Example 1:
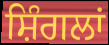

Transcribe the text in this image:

ਸ਼ਿੰਗਲਾਂ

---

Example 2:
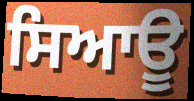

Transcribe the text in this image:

ਸਿਆਊ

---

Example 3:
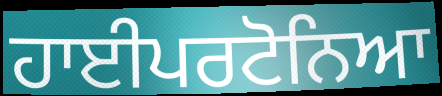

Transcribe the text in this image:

ਹਾਈਪਰਟੋਨਿਆ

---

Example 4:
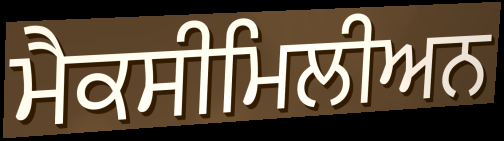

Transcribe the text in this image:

ਮੈਕਸੀਮਿਲੀਅਨ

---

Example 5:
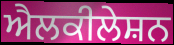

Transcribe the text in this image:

ਐਲਕੀਲੇਸ਼ਨ